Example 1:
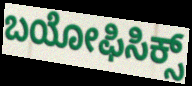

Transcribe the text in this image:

ಬಯೋಫಿಸಿಕ್ಸ್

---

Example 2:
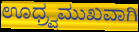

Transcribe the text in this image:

ಊಧ್ರ್ವಮುಖವಾಗಿ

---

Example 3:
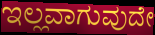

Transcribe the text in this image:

ಇಲ್ಲವಾಗುವುದೇ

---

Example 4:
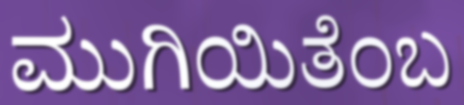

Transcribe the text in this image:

ಮುಗಿಯಿತೆಂಬ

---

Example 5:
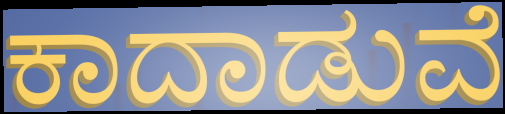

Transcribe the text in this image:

ಕಾದಾಡುವೆ